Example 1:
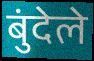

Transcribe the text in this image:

बुंदेले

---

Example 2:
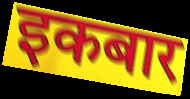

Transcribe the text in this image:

इकबार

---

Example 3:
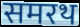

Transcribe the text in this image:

समरथ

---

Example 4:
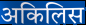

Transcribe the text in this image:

अकिलिस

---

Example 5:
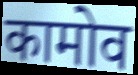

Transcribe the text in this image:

कामोव